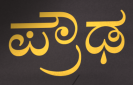
ಪ್ರೌಢ